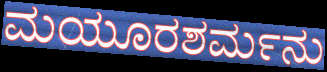
ಮಯೂರಶರ್ಮನು